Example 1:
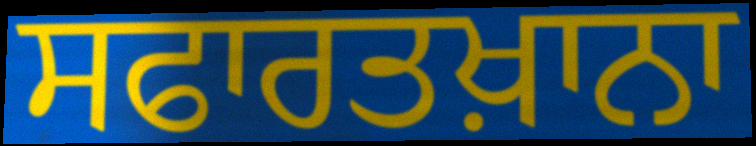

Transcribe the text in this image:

ਸਫਾਰਤਖ਼ਾਨਾ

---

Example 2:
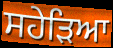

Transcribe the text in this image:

ਸਹੇੜਿਆ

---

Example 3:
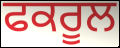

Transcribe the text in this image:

ਫਕਰੂਲ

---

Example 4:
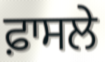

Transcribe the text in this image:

ਫ਼ਾਸਲੇ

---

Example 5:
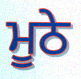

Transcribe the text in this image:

ਮੂਠੇ